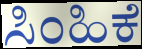
ಸಿಂಹಿಕೆ